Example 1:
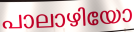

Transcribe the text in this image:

പാലാഴിയോ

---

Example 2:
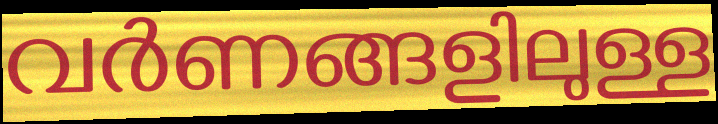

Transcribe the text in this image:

വർണങ്ങളിലുള്ള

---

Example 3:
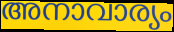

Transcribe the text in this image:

അനാവാര്യം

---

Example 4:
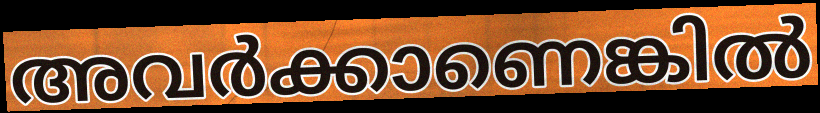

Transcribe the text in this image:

അവർക്കാണെങ്കിൽ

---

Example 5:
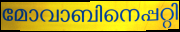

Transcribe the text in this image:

മോവാബിനെപ്പറ്റി